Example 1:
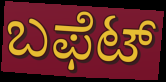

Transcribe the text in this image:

ಬಫೆಟ್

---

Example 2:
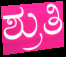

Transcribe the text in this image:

ಶ್ರುತಿ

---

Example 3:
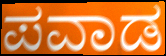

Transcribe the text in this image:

ಪವಾಡ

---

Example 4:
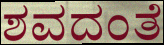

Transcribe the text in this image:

ಶವದಂತೆ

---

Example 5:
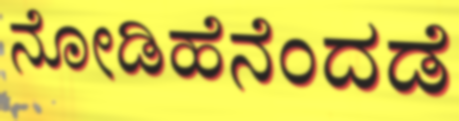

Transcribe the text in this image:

ನೋಡಿಹೆನೆಂದಡೆ